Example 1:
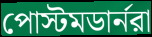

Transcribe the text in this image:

পোস্টমডার্নরা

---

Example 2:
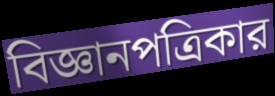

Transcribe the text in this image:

বিজ্ঞানপত্রিকার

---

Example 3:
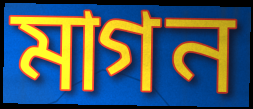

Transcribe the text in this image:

মাগন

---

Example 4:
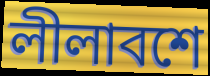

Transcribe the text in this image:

লীলাবশে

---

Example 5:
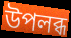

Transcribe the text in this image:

উপলব্ধ